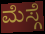
ಮೆಸ್ಗೆ